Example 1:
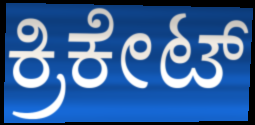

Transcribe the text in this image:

ಕ್ರಿಕೇಟ್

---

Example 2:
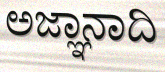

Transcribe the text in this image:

ಅಜ್ಞಾನಾದಿ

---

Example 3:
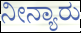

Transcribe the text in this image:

ನೀನ್ಯಾರು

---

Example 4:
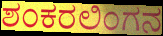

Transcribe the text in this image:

ಶಂಕರಲಿಂಗನ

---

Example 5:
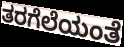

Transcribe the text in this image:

ತರಗೆಲೆಯಂತೆ